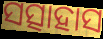
ସତ୍ସାହାସ